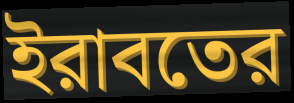
ইরাবতের